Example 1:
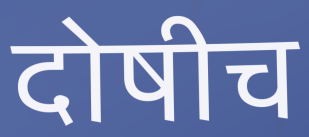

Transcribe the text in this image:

दोषीच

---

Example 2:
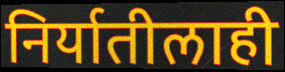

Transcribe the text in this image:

निर्यातीलाही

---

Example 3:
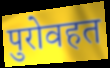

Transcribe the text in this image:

पुरोवहत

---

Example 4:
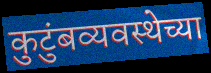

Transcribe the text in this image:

कुटुंबव्यवस्थेच्या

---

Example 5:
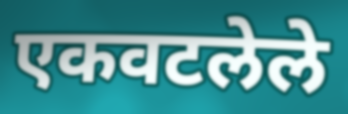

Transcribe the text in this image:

एकवटलेले